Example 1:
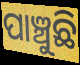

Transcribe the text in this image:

ପାଞ୍ଚୁଛି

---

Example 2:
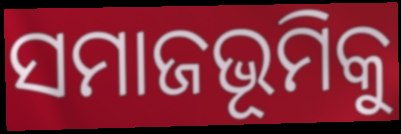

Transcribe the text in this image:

ସମାଜଭୂମିକୁ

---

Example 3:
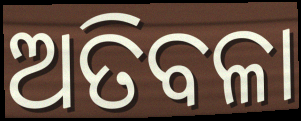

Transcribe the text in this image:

ଅତିବଳା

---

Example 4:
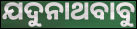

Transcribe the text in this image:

ଯଦୁନାଥବାବୁ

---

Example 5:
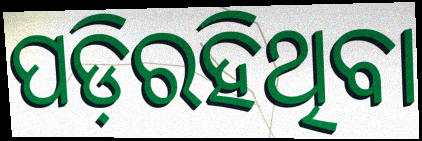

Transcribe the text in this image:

ପଡ଼ିରହିଥିବା